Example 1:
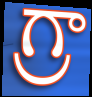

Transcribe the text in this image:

గ్రా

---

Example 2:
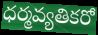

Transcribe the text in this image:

ధర్మవ్యతికరో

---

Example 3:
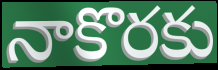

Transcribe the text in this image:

నాకొరకు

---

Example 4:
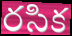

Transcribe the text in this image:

రసిక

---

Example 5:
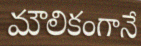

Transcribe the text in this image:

మౌలికంగానే